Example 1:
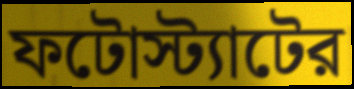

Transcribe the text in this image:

ফটোস্ট্যাটের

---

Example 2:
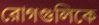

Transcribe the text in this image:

রোগগুলিকে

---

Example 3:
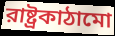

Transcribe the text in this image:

রাষ্ট্রকাঠামো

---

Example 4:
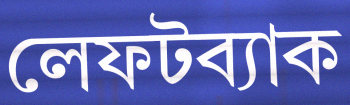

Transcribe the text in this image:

লেফটব্যাক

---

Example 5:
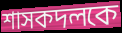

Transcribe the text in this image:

শাসকদলকে